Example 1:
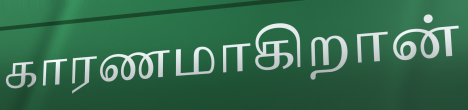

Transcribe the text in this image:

காரணமாகிறான்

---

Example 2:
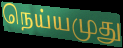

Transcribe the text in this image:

நெய்யமுது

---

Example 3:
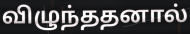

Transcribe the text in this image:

விழுந்ததனால்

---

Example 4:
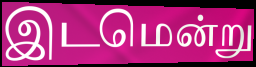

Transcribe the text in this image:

இடமென்று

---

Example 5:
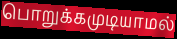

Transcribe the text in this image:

பொறுக்கமுடியாமல்